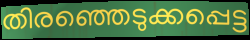
തിരഞ്ഞെടുക്കപ്പെട്ട